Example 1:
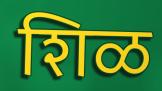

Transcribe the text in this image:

शिळ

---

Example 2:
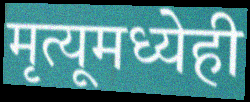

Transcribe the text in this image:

मृत्यूमध्येही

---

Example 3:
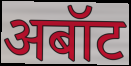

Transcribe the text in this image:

अबॉट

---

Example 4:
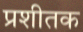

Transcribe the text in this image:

प्रशीतक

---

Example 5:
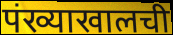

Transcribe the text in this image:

पंख्याखालची